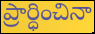
ప్రార్ధించినా